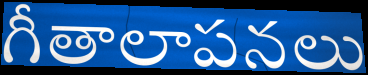
గీతాలాపనలు